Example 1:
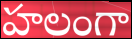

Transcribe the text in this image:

హలంగా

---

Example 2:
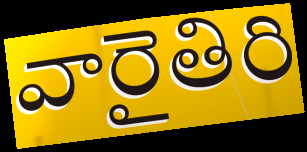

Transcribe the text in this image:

వారైతిరి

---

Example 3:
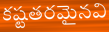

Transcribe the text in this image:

కష్టతరమైనవి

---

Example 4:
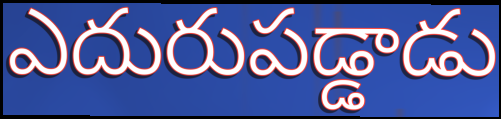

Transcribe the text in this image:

ఎదురుపడ్డాడు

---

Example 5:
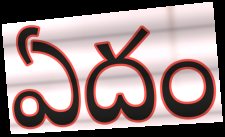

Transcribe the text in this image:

ఏదం